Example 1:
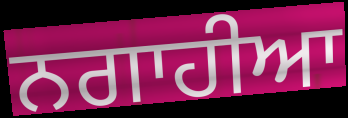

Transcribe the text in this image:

ਨਗਾਹੀਆ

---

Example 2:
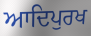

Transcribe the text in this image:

ਆਦਿਪੁਰਖ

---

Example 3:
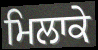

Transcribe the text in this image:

ਮਿਲਾਕੇ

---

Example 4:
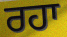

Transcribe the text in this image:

ਰਹਾ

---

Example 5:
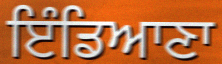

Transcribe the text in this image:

ਇੰਡਿਆਣਾ